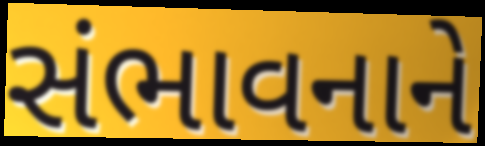
સંભાવનાને